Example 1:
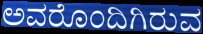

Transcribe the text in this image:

ಅವರೊಂದಿಗಿರುವ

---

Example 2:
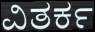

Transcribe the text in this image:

ವಿತರ್ಕ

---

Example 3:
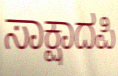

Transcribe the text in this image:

ಸಾಕ್ಷಾದಪಿ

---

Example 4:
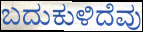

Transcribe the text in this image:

ಬದುಕುಳಿದೆವು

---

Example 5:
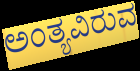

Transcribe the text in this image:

ಅಂತ್ಯವಿರುವ